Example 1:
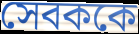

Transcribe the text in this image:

সেবককে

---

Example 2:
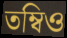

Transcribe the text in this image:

তম্বিও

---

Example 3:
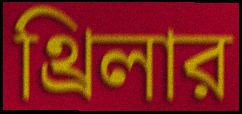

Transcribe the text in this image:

থ্রিলার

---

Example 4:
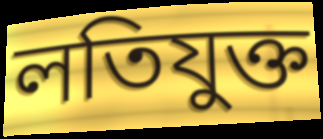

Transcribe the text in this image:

লতিযুক্ত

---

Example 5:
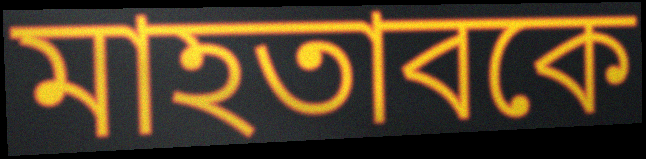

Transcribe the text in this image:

মাহতাবকে